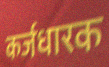
कर्जधारक